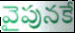
వైపునకే